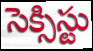
సెక్సిస్టు